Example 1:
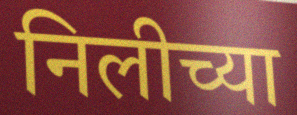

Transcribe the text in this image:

निलीच्या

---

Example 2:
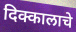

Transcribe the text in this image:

दिक्कालाचे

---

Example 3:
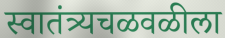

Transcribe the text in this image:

स्वातंत्र्यचळवळीला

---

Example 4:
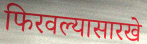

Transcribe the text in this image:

फिरवल्यासारखे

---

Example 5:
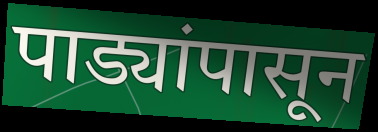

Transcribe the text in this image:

पाड्यांपासून